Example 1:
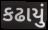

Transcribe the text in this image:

કઢાયું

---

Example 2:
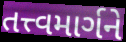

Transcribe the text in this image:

તત્ત્વમાર્ગને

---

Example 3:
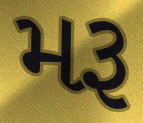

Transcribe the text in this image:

મરૂ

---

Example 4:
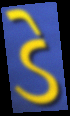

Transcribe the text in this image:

ડે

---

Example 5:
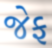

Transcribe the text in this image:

જેફ